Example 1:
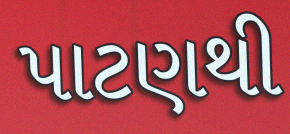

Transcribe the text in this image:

પાટણથી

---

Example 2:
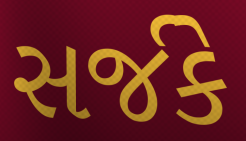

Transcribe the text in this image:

સર્જકે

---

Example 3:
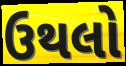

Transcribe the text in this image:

ઉથલો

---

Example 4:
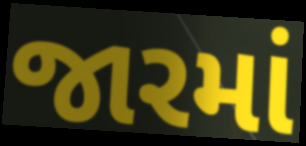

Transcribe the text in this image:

જારમાં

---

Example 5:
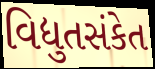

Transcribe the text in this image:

વિદ્યુતસંકેત